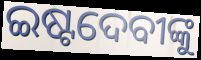
ଇଷ୍ଟଦେବୀଙ୍କୁ